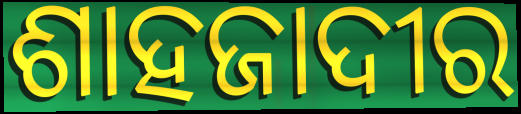
ଶାହଜାଦୀର